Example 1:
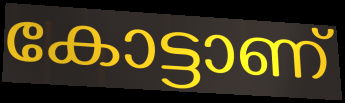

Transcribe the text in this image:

കോട്ടാണ്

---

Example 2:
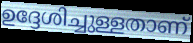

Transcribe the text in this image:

ഉദ്ദേശിച്ചുള്ളതാണ്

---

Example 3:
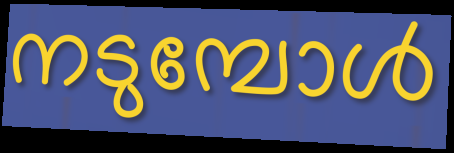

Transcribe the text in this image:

നടുമ്പോൾ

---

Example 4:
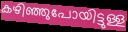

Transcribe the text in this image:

കഴിഞ്ഞുപോയിട്ടുള്ള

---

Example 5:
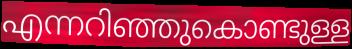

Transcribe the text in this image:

എന്നറിഞ്ഞുകൊണ്ടുള്ള